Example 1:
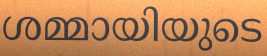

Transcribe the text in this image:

ശമ്മായിയുടെ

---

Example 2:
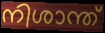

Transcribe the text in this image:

നിശാന്ത്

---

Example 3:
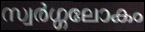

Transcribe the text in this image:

സ്വർഗ്ഗലോകം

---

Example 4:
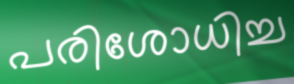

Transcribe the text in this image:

പരിശോധിച്ച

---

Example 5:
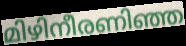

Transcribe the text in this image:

മിഴിനീരണിഞ്ഞ